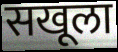
सखूला